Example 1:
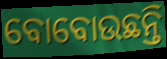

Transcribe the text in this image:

ବୋବୋଉଛନ୍ତି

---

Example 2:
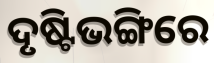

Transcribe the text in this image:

ଦୃଷ୍ଟିଭଙ୍ଗିରେ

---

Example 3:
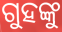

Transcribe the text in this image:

ଗୁହଙ୍କୁ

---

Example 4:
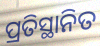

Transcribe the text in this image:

ପ୍ରତିସ୍ଥାନିତ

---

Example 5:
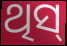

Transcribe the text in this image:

ଥିସ୍